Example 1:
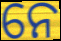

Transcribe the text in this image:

ନେ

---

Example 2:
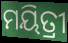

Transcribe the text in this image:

ମୟିତ୍ରୀ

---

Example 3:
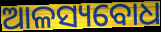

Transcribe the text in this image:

ଆଳସ୍ୟବୋଧ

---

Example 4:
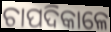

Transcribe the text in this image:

ଚାପଦିକାଳେ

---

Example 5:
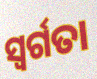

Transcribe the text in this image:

ସ୍ୱର୍ଗତା